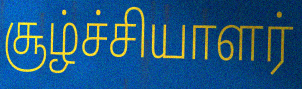
சூழ்ச்சியாளர்